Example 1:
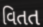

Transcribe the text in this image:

વિતત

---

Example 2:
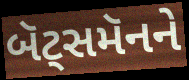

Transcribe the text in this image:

બૅટ્સમૅનને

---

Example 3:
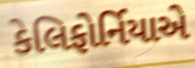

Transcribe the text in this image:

કેલિફોર્નિયાએ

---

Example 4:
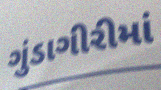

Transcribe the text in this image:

ગુંડાગીરીમાં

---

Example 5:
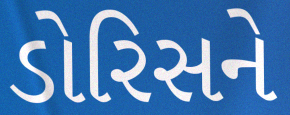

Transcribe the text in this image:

ડોરિસને